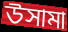
উসামা